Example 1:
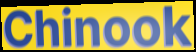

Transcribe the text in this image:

Chinook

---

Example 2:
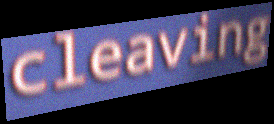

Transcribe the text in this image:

cleaving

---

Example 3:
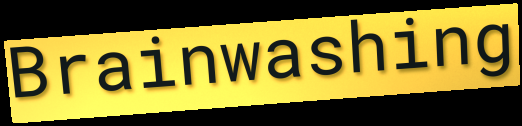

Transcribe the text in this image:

Brainwashing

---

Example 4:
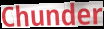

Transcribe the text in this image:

Chunder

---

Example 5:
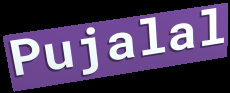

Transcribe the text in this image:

Pujalal